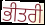
ਭੀਤਰੀ